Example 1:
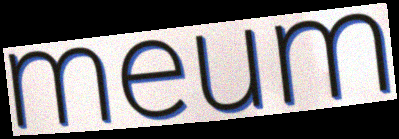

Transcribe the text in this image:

meum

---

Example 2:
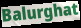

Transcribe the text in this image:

Balurghat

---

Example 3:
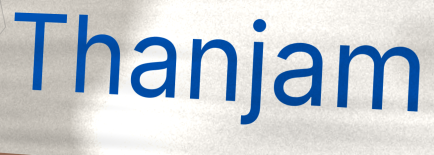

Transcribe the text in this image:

Thanjam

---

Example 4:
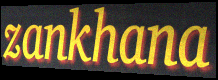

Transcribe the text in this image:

zankhana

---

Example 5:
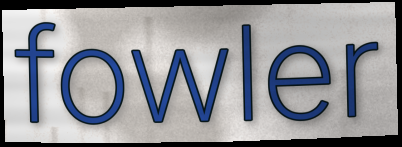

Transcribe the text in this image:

fowler